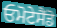
ਓਮੋਟੇਸੈਂਡੋ